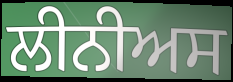
ਲੀਨੀਅਸ